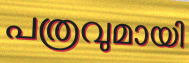
പത്രവുമായി